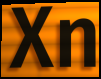
Xn